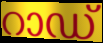
റാഡ്